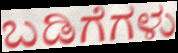
ಬಡಿಗೆಗಳು